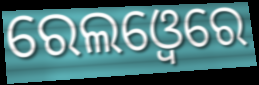
ରେଲଓ୍ୱେରେ